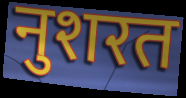
नुशरत